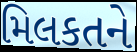
મિલકતને